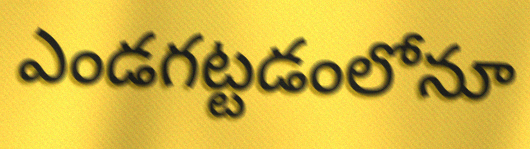
ఎండగట్టడంలోనూ